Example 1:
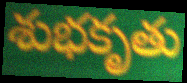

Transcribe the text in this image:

శుభకృతు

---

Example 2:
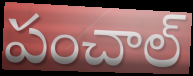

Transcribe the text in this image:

పంచాల్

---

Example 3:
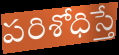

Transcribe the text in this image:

పరిశోధిస్తే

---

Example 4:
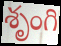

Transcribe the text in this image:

శృంగి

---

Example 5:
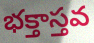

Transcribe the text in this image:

భక్తాస్తవ